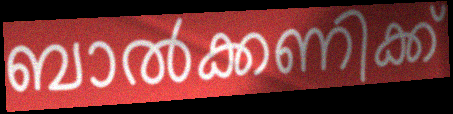
ബാൽക്കണിക്ക്